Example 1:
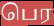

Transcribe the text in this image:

பெர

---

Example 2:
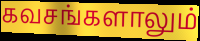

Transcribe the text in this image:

கவசங்களாலும்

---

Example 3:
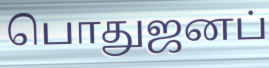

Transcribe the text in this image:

பொதுஜனப்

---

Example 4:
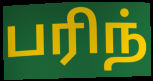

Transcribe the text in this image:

பரிந்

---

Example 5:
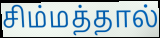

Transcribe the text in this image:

சிம்மத்தால்